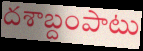
దశాబ్దంపాటు